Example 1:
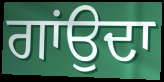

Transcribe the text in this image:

ਗਾਂਉਦਾ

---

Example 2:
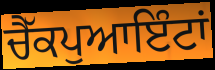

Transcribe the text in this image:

ਚੈੱਕਪੁਆਇੰਟਾਂ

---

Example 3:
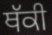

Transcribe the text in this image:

ਥੱਕੀ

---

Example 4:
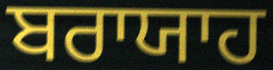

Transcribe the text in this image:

ਬਰਾਯਾਹ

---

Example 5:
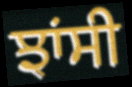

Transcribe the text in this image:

ਝਾਂਸੀ